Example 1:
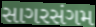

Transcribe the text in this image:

સાગરસંગમ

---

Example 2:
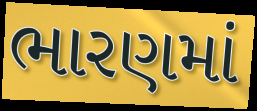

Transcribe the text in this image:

ભારણમાં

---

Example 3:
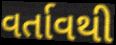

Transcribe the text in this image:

વર્તાવથી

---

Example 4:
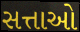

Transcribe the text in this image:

સત્તાઓ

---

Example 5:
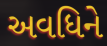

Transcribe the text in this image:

અવધિને